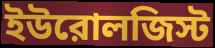
ইউরোলজিস্ট